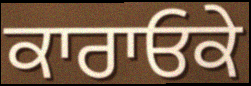
ਕਾਰਾਓਕੇ